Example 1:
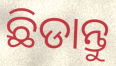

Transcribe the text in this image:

ଛିଡାନ୍ତୁ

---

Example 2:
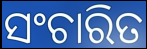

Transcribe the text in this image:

ସଂଚାରିତ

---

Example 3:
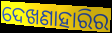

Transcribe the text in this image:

ଦେଖଣାହାରିର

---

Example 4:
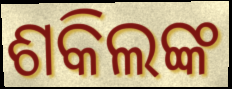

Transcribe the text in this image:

ଶକିଲଙ୍କ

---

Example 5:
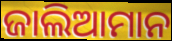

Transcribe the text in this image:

ଜାଲିଆମାନ